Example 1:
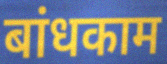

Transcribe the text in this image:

बांधकाम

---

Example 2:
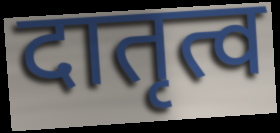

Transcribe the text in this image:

दातृत्व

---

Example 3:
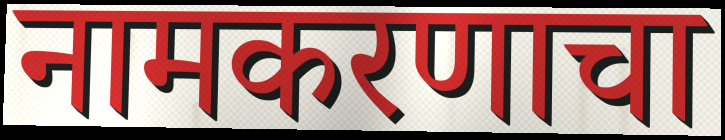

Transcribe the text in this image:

नामकरणाचा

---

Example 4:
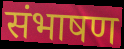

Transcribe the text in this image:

संभाषण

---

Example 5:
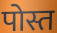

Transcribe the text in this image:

पोस्त